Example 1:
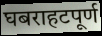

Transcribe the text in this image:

घबराहटपूर्ण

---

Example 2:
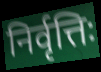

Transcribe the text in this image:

निर्वृत्तिः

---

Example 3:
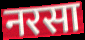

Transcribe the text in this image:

नरसा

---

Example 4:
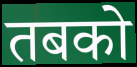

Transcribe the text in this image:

तबको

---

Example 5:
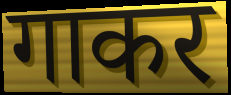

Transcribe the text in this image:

गाकर